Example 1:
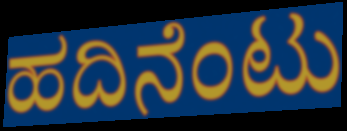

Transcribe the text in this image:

ಹದಿನೆಂಟು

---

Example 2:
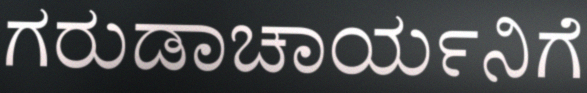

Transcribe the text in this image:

ಗರುಡಾಚಾರ್ಯನಿಗೆ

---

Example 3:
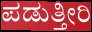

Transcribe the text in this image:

ಪಡುತ್ತೀರಿ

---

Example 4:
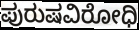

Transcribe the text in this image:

ಪುರುಷವಿರೋಧಿ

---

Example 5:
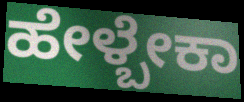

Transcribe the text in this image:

ಹೇಳ್ಬೇಕಾ